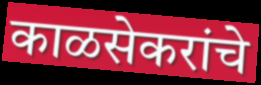
काळसेकरांचे